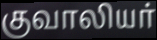
குவாலியர்